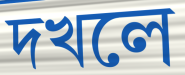
দখলে